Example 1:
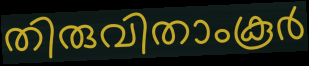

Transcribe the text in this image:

തിരുവിതാംകൂർ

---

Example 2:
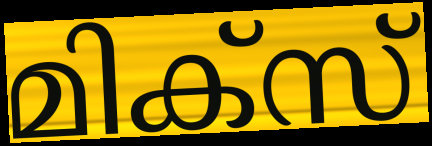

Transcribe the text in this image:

മിക്സ്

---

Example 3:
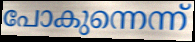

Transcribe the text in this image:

പോകുന്നെന്ന്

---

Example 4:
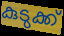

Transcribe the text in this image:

കുടുക്ക്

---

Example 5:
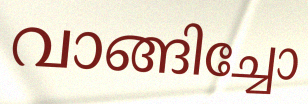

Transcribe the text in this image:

വാങ്ങിച്ചോ